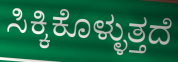
ಸಿಕ್ಕಿಕೊಳ್ಳುತ್ತದೆ